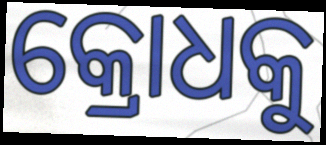
କ୍ରୋଧକୁ